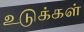
உடுக்கள்